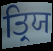
ਤ੍ਰਿਯ